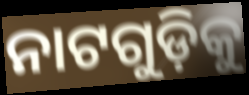
ନାଟଗୁଡ଼ିକୁ